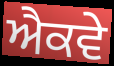
ਐਕਵੇ